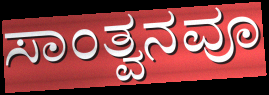
ಸಾಂತ್ವನವೂ